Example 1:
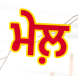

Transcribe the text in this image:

ਮੇਲ਼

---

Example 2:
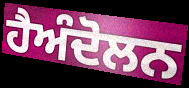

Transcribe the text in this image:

ਹੈਅੰਦੋਲਨ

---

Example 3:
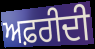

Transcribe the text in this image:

ਅਫ਼ਰੀਦੀ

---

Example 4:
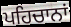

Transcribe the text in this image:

ਪਹਿਚਾਨਾਂ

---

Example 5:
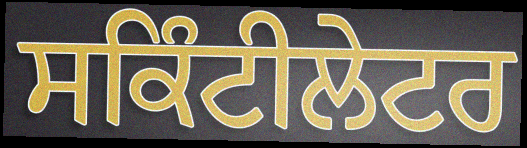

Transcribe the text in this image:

ਸਕਿੰਟੀਲੇਟਰ